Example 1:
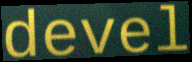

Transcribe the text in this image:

devel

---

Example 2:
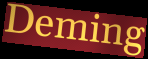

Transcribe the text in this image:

Deming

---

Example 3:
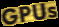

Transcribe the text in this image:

GPUs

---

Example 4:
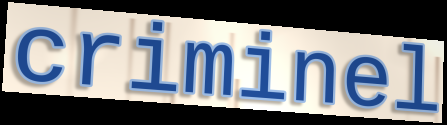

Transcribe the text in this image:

criminel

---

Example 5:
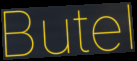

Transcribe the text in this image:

Butel